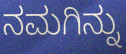
ನಮಗಿನ್ನು